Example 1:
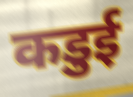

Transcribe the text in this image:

कडुई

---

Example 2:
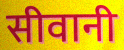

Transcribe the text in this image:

सीवानी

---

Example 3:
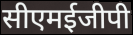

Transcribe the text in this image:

सीएमईजीपी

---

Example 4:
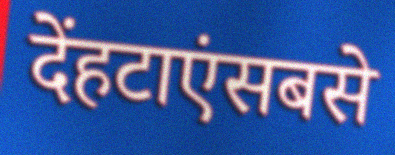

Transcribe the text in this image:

देंहटाएंसबसे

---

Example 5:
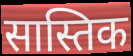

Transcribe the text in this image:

सास्तिक